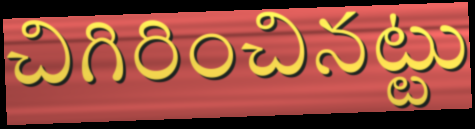
చిగిరించినట్టు